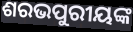
ଶରଭପୁରୀୟଙ୍କ